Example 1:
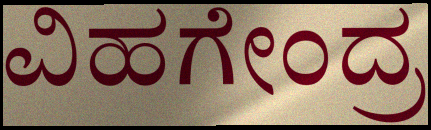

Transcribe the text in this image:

ವಿಹಗೇಂದ್ರ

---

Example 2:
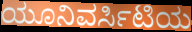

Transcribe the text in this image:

ಯೂನಿವರ್ಸಿಟಿಯ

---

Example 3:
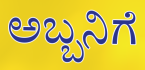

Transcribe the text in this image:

ಅಬ್ಬನಿಗೆ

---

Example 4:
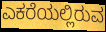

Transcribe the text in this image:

ಎಕರೆಯಲ್ಲಿರುವ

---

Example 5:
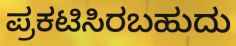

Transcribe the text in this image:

ಪ್ರಕಟಿಸಿರಬಹುದು